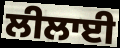
ਲੀਲਾਈ